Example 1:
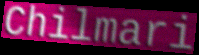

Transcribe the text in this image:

Chilmari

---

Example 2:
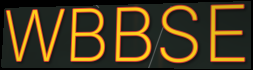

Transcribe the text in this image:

WBBSE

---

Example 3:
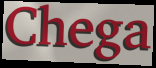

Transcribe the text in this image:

Chega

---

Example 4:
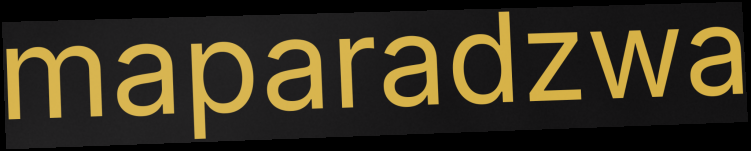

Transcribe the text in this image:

maparadzwa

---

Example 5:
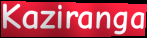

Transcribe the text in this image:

Kaziranga